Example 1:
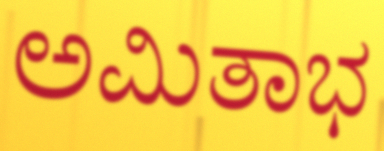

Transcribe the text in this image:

ಅಮಿತಾಭ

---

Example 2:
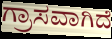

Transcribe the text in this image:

ಗ್ರಾಸವಾಗಿದೆ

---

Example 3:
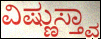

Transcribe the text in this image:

ವಿಷ್ಣುಸ್ತ್ವಾ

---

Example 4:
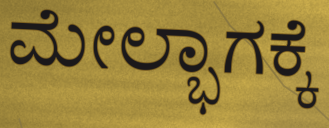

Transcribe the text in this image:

ಮೇಲ್ಭಾಗಕ್ಕೆ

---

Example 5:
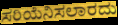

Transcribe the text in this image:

ಸರಿಯೆನಿಸಲಾರದು